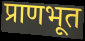
प्राणभूत